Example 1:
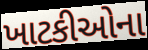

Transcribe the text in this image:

ખાટકીઓના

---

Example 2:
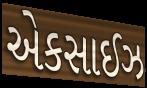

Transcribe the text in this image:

એકસાઈઝ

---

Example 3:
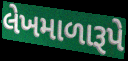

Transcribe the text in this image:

લેખમાળારૂપે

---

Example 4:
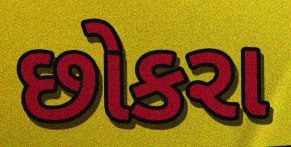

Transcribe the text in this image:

છોકરા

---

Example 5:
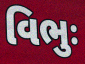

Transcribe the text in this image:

વિભુઃ